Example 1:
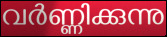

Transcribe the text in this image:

വർണ്ണിക്കുന്നു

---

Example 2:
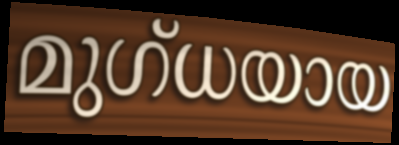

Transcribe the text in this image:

മുഗ്ധയായ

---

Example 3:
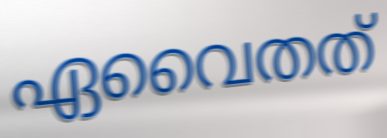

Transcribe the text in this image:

ഏവൈതത്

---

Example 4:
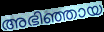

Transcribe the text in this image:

അഭിഞ്ഞായ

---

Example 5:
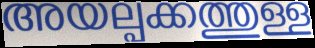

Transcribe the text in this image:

അയല്പക്കത്തുള്ള